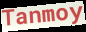
Tanmoy